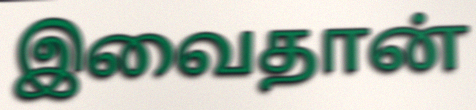
இவைதான்